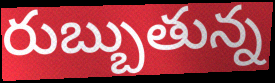
రుబ్బుతున్న